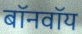
बॉनवॉय